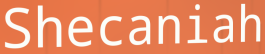
Shecaniah